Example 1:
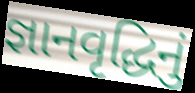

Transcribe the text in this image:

જ્ઞાનવૃદ્ધિનું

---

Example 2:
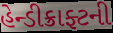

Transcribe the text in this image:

હેન્ડીક્રાફ્ટની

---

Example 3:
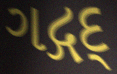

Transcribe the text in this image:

ગદ્ગદ્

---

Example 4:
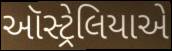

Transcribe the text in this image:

ઑસ્ટ્રેલિયાએ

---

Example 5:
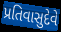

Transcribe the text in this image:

પ્રતિવાસુદેવે